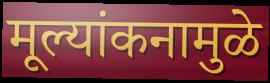
मूल्यांकनामुळे